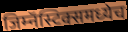
जिम्नॅस्टिक्समध्येच